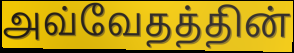
அவ்வேதத்தின்